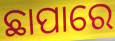
ଛାପାରେ